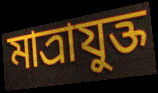
মাত্ৰাযুক্ত